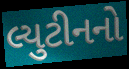
લ્યુટીનનો